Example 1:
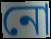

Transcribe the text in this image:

নো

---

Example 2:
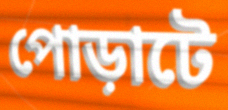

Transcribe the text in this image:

পোড়াটে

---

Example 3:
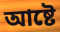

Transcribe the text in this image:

আষ্টে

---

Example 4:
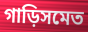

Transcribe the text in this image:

গাড়িসমেত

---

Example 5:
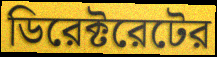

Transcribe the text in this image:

ডিরেক্টরেটের